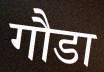
गौडा